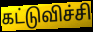
கட்டுவிச்சி